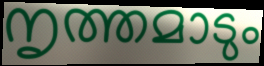
നൃത്തമാടും